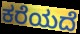
ಕರೆಯದೆ